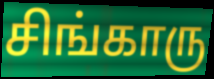
சிங்காரு